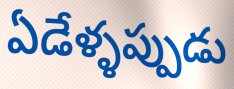
ఏడేళ్ళప్పుడు